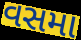
વસમા